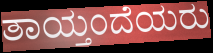
ತಾಯ್ತಂದೆಯರು